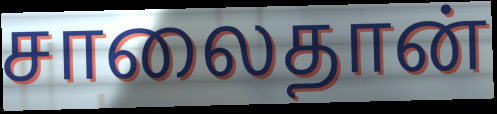
சாலைதான்